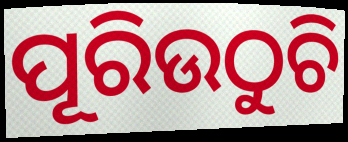
ପୂରିଉଠୁଚି